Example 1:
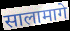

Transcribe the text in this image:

सालामागे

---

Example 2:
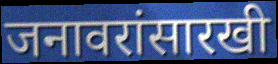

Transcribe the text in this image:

जनावरांसारखी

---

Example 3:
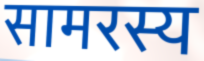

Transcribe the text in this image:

सामरस्य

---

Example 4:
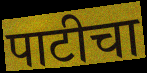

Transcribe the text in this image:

पाटीचा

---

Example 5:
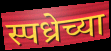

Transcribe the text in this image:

स्पध्रेच्या